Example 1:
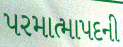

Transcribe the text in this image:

પરમાત્માપદની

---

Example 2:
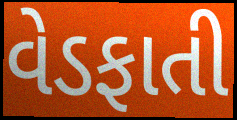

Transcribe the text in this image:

વેડફાતી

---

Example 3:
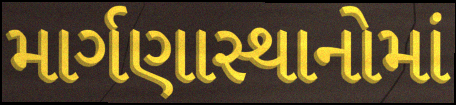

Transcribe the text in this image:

માર્ગણાસ્થાનોમાં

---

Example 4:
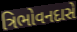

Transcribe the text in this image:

ત્રિભોવનદાસે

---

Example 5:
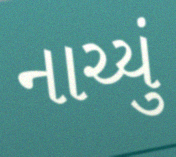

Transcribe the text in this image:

નાચ્યું